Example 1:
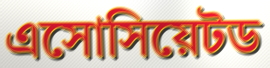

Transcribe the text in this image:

এসোসিয়েটড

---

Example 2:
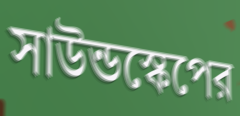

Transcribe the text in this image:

সাউন্ডস্কেপের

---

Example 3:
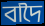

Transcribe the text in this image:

বাদৈ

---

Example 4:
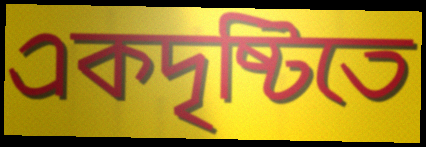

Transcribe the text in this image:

একদৃষ্টিতে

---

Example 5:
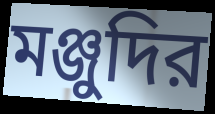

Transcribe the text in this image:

মঞ্জুদির